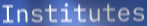
Institutes